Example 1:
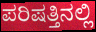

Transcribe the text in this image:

ಪರಿಷತ್ತಿನಲ್ಲಿ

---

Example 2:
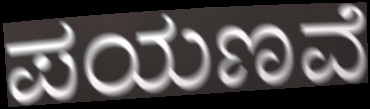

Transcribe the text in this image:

ಪಯಣವೆ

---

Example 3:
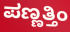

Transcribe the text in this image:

ಪಣ್ಣತ್ತಿಂ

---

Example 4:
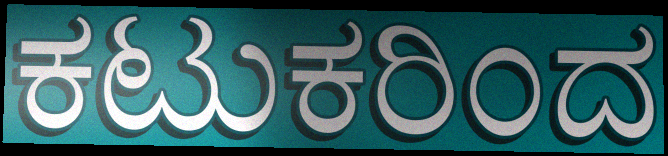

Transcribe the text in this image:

ಕಟುಕರಿಂದ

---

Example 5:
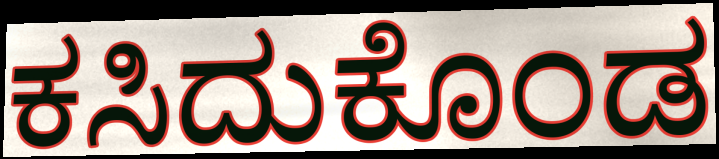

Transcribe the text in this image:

ಕಸಿದುಕೊಂಡ